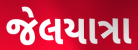
જેલયાત્રા